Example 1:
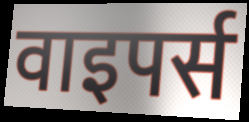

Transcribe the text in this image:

वाइपर्स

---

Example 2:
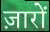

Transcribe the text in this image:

ज़ारों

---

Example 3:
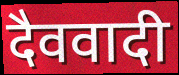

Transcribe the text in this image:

दैववादी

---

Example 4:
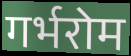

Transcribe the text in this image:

गर्भरोम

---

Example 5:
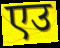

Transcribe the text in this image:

एउ